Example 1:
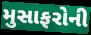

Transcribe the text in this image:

મુસાફરોની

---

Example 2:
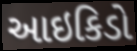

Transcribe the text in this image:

આઇકિડો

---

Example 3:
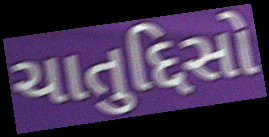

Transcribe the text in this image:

ચાતુદ્દિસો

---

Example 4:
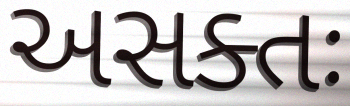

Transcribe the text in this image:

અસક્તઃ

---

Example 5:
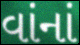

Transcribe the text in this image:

વાંનાં